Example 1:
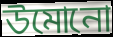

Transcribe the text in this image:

উমোনো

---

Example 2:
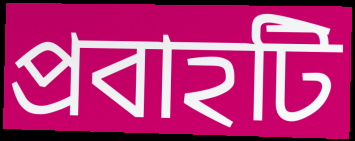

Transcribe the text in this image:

প্রবাহটি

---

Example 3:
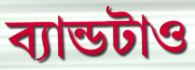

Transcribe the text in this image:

ব্যান্ডটাও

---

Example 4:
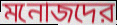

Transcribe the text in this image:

মনোজদের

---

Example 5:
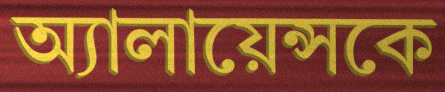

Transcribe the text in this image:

অ্যালায়েন্সকে